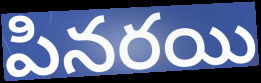
పినరయి